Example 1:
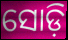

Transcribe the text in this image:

ସୋଡ଼ି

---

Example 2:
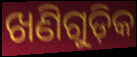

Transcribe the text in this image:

ଖଣିଗୁଡ଼ିକ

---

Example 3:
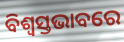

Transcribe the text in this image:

ବିଶ୍ୱସ୍ତଭାବରେ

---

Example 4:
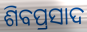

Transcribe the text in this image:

ଶିବପ୍ରସାଦ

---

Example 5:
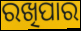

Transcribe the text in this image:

ରଖିପାର